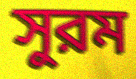
সুরম